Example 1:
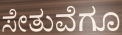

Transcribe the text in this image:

ಸೇತುವೆಗೂ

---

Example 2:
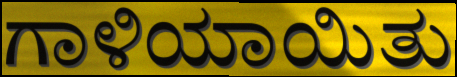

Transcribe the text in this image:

ಗಾಳಿಯಾಯಿತು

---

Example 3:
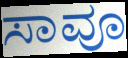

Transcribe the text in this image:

ಸಾವೂ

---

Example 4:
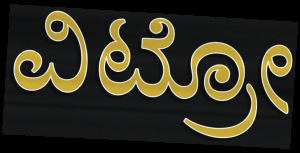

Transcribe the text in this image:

ವಿಟ್ರೋ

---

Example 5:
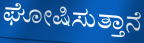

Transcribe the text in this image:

ಘೋಷಿಸುತ್ತಾನೆ